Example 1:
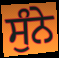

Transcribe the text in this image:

ਸੁੰਨੇ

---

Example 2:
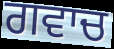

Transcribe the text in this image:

ਗਵਾਚ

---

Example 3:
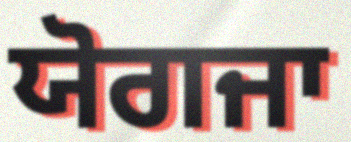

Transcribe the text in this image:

ਯੋਗਜਾ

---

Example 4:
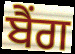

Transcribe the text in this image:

ਬੈਂਗ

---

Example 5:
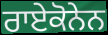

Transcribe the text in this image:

ਰਾਏਕੋਨੇਨ